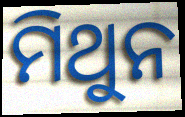
ମିଥୁନ